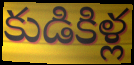
కుడికిళ్ల